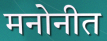
मनोनीत